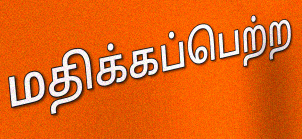
மதிக்கப்பெற்ற